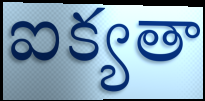
ఐక్యతా